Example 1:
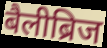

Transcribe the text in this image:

बैलीब्रिज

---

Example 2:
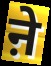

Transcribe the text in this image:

ऩे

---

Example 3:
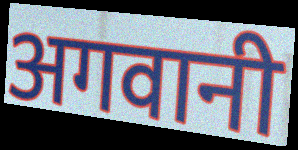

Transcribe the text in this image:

अगवानी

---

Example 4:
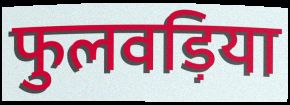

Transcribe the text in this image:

फुलवड़िया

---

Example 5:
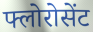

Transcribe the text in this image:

फ्लोरोसेंट